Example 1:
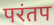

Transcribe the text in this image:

परंतप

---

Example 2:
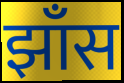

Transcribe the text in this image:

झाँस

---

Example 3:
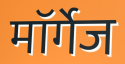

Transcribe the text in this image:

मॉर्गेज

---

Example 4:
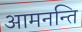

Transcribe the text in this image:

आमनन्ति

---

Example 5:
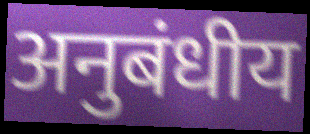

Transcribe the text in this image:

अनुबंधीय